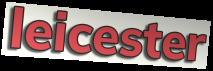
leicester